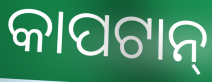
କାପଟାନ୍